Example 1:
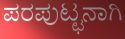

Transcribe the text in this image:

ಪರಪುಟ್ಟನಾಗಿ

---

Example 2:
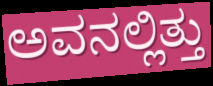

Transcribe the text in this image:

ಅವನಲ್ಲಿತ್ತು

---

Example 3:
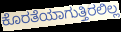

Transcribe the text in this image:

ಕೊರತೆಯಾಗುತ್ತಿರಲಿಲ್ಲ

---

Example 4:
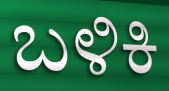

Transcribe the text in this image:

ಬಳಿಕಿ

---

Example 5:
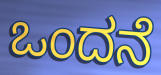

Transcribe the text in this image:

ಒಂದನೆ